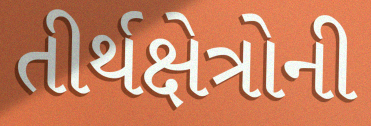
તીર્થક્ષેત્રોની